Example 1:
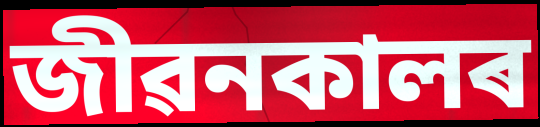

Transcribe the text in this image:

জীৱনকালৰ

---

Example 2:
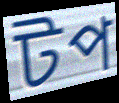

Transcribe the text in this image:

টপ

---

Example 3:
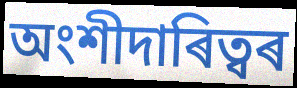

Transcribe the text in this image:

অংশীদাৰিত্বৰ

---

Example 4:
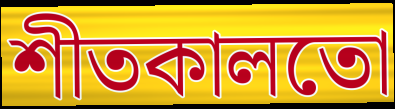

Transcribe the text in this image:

শীতকালতো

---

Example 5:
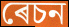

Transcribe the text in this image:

ৰেচন